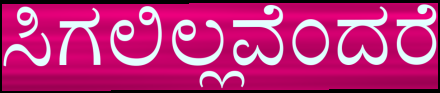
ಸಿಗಲಿಲ್ಲವೆಂದರೆ